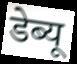
डेब्यू